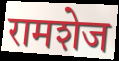
रामशेज